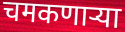
चमकणाऱ्या